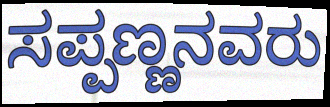
ಸಪ್ಪಣ್ಣನವರು